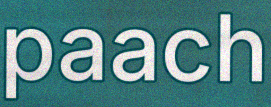
paach